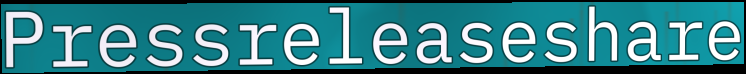
Pressreleaseshare